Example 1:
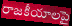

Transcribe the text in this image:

రాజకీయాలపై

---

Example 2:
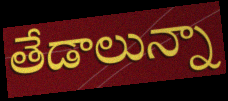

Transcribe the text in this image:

తేడాలున్నా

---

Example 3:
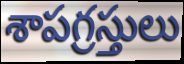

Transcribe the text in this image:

శాపగ్రస్తులు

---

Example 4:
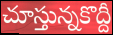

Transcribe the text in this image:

చూస్తున్నకొద్దీ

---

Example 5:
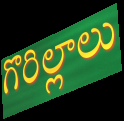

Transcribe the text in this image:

గొరిల్లాలు